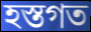
হস্তগত